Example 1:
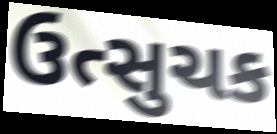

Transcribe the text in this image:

ઉત્સુચક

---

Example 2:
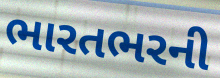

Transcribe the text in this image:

ભારતભરની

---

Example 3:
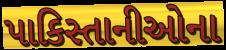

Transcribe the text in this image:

પાકિસ્તાનીઓના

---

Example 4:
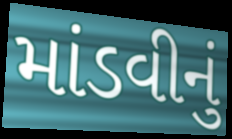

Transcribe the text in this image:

માંડવીનું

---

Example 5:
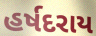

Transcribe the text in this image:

હર્ષદરાય